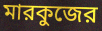
মারকুজের